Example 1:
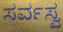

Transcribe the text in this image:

ಸರ್ವಸ್ವ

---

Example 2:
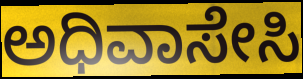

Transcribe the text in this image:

ಅಧಿವಾಸೇಸಿ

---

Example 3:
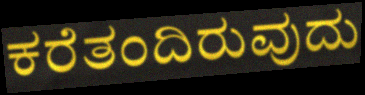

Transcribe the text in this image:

ಕರೆತಂದಿರುವುದು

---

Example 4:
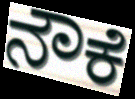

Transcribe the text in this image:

ನೌಕೆ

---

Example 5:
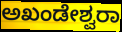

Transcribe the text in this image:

ಅಖಂಡೇಶ್ವರಾ